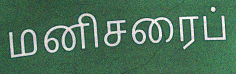
மனிசரைப்